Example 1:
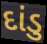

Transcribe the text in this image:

દાંડુ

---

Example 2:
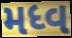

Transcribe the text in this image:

મધ્વ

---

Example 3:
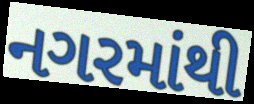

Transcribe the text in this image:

નગરમાંથી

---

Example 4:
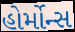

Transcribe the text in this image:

હોર્મોન્સ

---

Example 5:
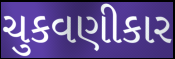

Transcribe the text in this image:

ચુકવણીકાર